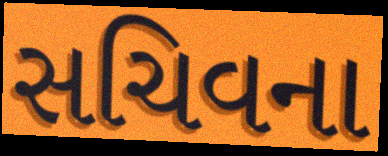
સચિવના